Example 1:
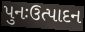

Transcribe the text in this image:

પુનઃઉત્પાદન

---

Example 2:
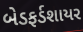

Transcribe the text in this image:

બેડફર્ડશાયર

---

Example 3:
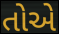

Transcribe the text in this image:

તોએ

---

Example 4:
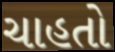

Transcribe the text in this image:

ચાહતો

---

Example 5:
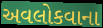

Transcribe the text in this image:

અવલોકવાના